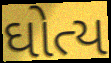
ઘોત્ય